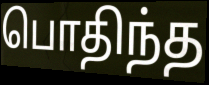
பொதிந்த